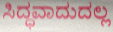
ಸಿದ್ಧವಾದುದಲ್ಲ